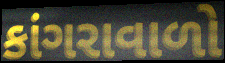
કાંગરાવાળો